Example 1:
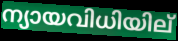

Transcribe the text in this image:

ന്യായവിധിയില്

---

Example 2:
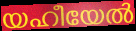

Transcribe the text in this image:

യഹീയേൽ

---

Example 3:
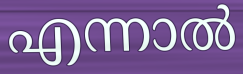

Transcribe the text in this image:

എന്നാൽ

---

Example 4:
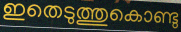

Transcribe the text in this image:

ഇതെടുത്തുകൊണ്ടു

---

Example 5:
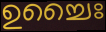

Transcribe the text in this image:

ഉച്ചൈഃ